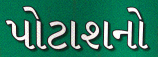
પોટાશનો